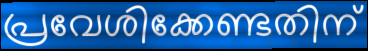
പ്രവേശിക്കേണ്ടതിന്